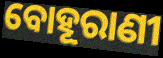
ବୋହୂରାଣୀ